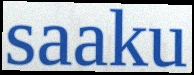
saaku